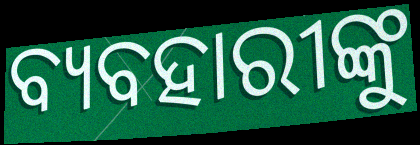
ବ୍ୟବହାରୀଙ୍କୁ